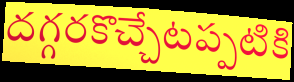
దగ్గరకొచ్చేటప్పటికి